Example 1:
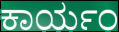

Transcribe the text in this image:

ಕಾರ್ಯಂ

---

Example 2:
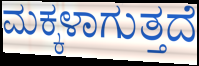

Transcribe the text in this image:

ಮಕ್ಕಳಾಗುತ್ತದೆ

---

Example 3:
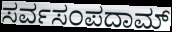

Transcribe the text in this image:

ಸರ್ವಸಂಪದಾಮ್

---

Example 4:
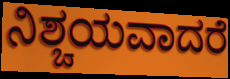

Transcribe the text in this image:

ನಿಶ್ಚಯವಾದರೆ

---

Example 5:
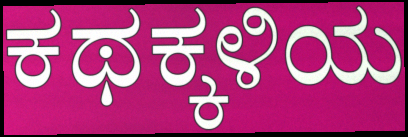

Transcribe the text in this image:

ಕಥಕ್ಕಳಿಯ